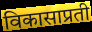
विकासाप्रती